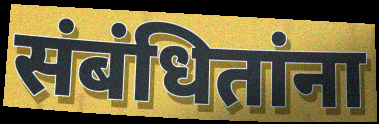
संबंधितांना